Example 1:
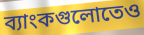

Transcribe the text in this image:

ব্যাংকগুলোতেও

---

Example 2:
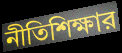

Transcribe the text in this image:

নীতিশিক্ষার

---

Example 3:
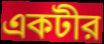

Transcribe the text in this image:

একটীর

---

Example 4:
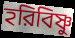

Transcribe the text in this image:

হরিবিষ্ণু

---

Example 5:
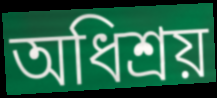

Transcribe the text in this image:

অধিশ্রয়